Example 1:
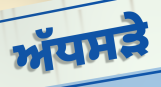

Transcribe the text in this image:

ਅੱਧਸੜੇ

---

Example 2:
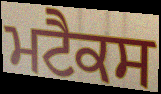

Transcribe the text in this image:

ਮਟੈਕਸ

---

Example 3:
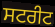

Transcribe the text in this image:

ਸਟਰੀਟ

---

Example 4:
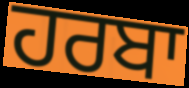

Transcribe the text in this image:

ਹਰਬਾ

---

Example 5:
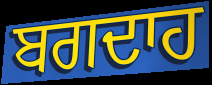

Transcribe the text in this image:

ਬਗਦਾਹ